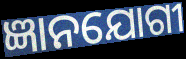
ଜ୍ଞାନଯୋଗୀ